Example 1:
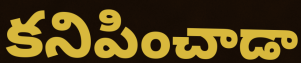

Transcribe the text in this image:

కనిపించాడా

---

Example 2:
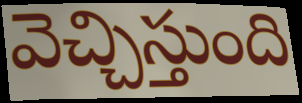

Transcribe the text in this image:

వెచ్చిస్తుంది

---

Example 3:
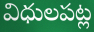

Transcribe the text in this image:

విధులపట్ల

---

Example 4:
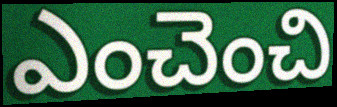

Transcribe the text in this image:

ఎంచెంచి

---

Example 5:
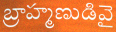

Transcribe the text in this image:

బ్రాహ్మణుడివై